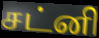
சட்னி